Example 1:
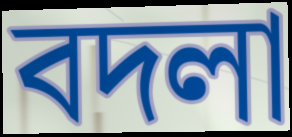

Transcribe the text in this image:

বদলা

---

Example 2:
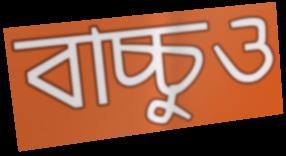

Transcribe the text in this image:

বাচ্চুও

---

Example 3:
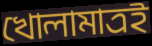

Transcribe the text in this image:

খোলামাত্রই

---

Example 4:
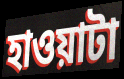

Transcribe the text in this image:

হাওয়াটা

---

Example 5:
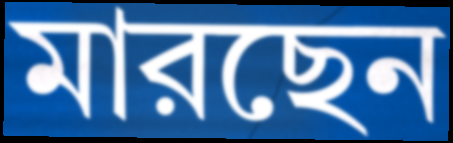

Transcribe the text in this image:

মারছেন